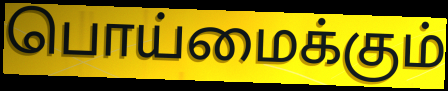
பொய்மைக்கும்